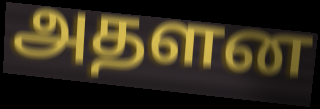
அதளன